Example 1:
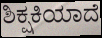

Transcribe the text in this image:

ಶಿಕ್ಷಕಿಯಾದೆ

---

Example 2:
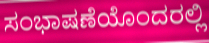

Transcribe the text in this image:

ಸಂಭಾಷಣೆಯೊಂದರಲ್ಲಿ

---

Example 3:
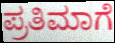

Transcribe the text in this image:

ಪ್ರತಿಮಾಗೆ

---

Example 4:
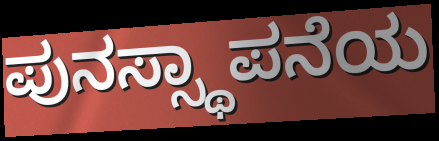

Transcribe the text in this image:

ಪುನಸ್ಸ್ಥಾಪನೆಯ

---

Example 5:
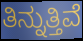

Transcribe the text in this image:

ತಿನ್ನುತ್ತಿವೆ